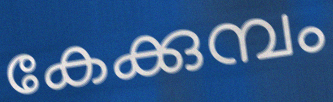
കേക്കുമ്പം